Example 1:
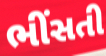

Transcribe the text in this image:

ભીંસતી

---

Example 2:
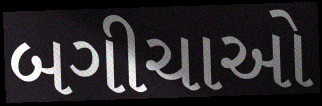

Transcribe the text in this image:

બગીચાઓ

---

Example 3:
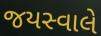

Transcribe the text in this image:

જયસ્વાલે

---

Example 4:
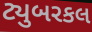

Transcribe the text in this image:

ટ્યુબરકલ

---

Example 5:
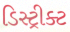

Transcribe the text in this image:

ડિસ્ટ્રીક્ટ